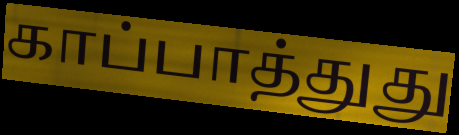
காப்பாத்துது